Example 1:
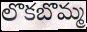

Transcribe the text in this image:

లొకబొమ్మ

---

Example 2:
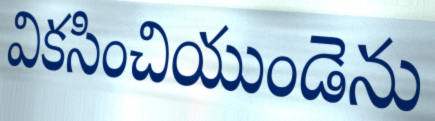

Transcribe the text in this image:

వికసించియుండెను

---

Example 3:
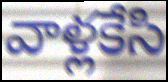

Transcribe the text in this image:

వాళ్లకేసి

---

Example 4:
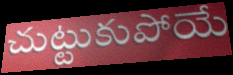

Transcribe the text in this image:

చుట్టుకుపోయే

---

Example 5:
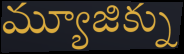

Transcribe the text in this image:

మ్యూజిక్ను